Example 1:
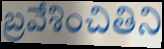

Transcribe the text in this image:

బ్రవేశించితిని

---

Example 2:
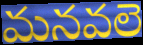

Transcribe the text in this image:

మనవలె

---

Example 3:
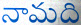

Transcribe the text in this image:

నామది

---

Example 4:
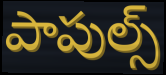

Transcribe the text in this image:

పాపుల్స్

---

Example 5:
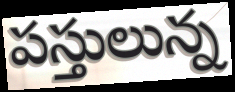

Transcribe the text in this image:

పస్తులున్న